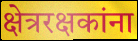
क्षेत्ररक्षकांना